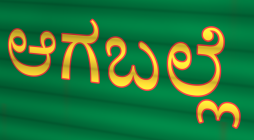
ಆಗಬಲ್ಲೆ